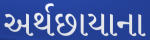
અર્થછાયાના